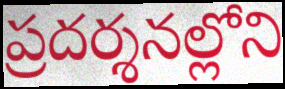
ప్రదర్శనల్లోని